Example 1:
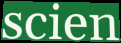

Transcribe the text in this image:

scien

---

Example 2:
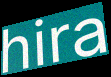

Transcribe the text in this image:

hira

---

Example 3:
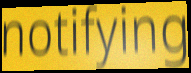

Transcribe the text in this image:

notifying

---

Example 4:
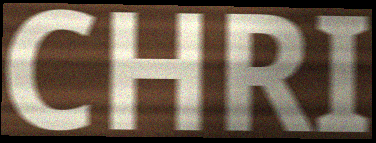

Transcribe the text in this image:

CHRI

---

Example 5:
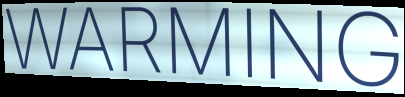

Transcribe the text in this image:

WARMING